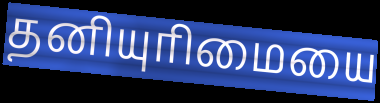
தனியுரிமையை